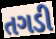
તગડી